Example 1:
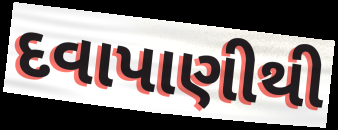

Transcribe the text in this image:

દવાપાણીથી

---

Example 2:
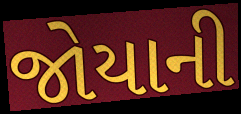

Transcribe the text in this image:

જોયાની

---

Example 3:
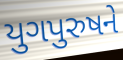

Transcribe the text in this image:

યુગપુરુષને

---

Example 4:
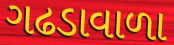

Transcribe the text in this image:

ગઢડાવાળા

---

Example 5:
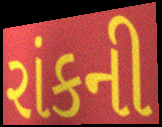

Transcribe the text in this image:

રાંકની